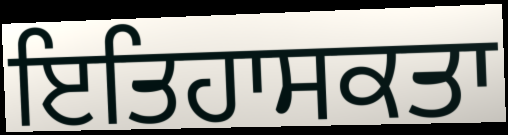
ਇਤਿਹਾਸਕਤਾ